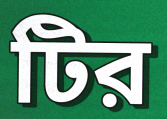
টির